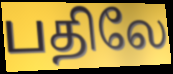
பதிலே